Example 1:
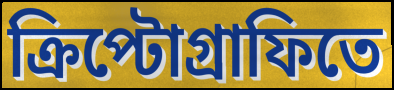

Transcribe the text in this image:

ক্রিপ্টোগ্রাফিতে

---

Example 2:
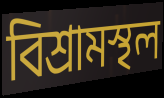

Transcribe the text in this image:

বিশ্রামস্থল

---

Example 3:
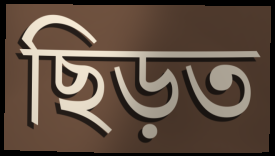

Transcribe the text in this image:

ছিড়ত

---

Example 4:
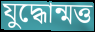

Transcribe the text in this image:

যুদ্ধোন্মত্ত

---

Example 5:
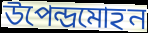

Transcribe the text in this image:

উপেন্দ্রমোহন